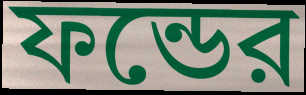
ফন্ডের